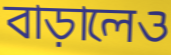
বাড়ালেও